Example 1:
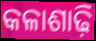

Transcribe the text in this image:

କଳାଶାଢ଼ି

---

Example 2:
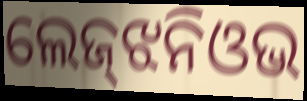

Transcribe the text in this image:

ଲେଜ୍‌ଝନିଓଭ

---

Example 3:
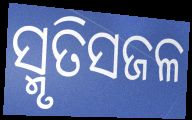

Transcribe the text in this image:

ସ୍ମୃତିସଜଳ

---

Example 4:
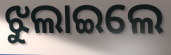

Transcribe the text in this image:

ଝୁଲାଇଲେ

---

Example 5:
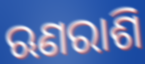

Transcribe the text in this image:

ଋଣରାଶି